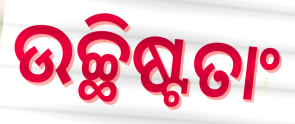
ଉଚ୍ଛିଷ୍ଟତାଂ